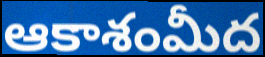
ఆకాశంమీద